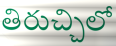
తిరుచ్చిలో